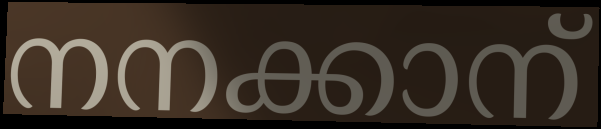
നനക്കാന്